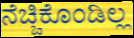
ನೆಚ್ಚಿಕೊಂಡಿಲ್ಲ